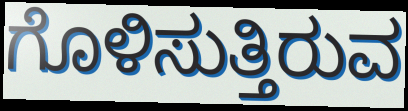
ಗೊಳಿಸುತ್ತಿರುವ